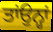
ਤਾਂਉਨ੍ਹਾਂ